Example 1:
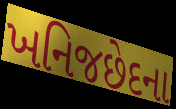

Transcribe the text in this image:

ખનિજછેદના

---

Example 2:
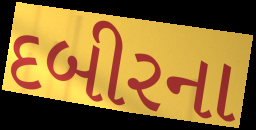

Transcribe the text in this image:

દબીરના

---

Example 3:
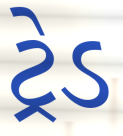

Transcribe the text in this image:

ટ્રેડ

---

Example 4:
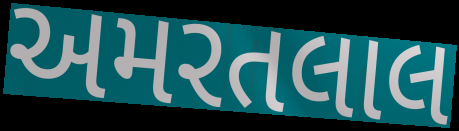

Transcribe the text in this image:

અમરતલાલ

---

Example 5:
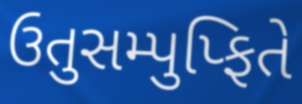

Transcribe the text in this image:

ઉતુસમ્પુપ્ફિતે